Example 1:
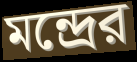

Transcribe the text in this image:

মন্দ্রের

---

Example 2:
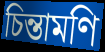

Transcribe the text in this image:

চিন্তামণি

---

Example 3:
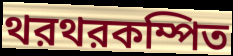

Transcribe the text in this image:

থরথরকম্পিত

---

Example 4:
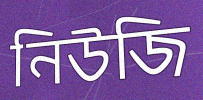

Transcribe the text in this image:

নিউজি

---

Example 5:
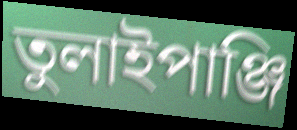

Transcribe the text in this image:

তুলাইপাঞ্জি